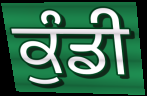
ਕੁੰਡੀ